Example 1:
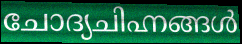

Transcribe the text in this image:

ചോദ്യചിഹ്നങ്ങൾ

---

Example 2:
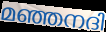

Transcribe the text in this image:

മഞ്ഞനദി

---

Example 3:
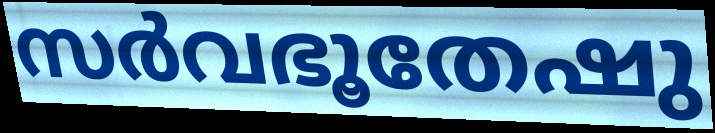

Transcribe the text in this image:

സർവഭൂതേഷു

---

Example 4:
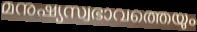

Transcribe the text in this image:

മനുഷ്യസ്വഭാവത്തെയും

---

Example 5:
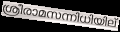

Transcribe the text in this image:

ശ്രീരാമസന്നിധിയില്